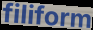
filiform